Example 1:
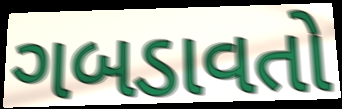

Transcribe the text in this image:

ગબડાવતો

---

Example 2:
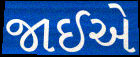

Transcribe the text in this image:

જાઈએ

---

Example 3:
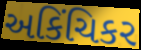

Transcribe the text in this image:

અકિંચિકર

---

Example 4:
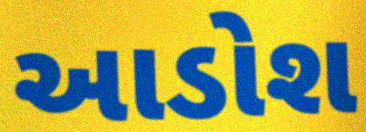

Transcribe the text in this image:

આડોશ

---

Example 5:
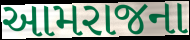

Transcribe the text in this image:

આમરાજના